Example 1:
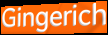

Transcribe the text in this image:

Gingerich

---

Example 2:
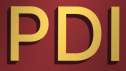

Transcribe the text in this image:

PDI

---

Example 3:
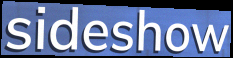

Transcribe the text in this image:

sideshow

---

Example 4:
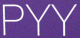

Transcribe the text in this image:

PYY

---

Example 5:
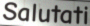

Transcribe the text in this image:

Salutati